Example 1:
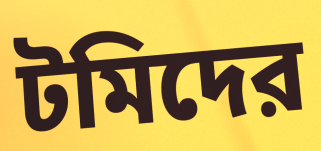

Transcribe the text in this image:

টমিদের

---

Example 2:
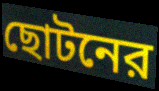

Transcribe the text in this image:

ছোটনের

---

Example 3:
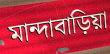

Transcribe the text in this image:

মান্দাবাড়িয়া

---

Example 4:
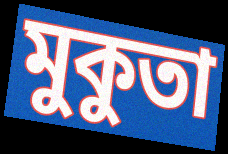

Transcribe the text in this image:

মুকুতা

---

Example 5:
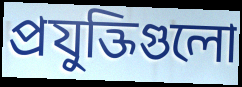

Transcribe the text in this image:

প্রযুক্তিগুলো